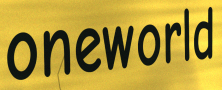
oneworld